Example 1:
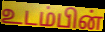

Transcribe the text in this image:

உடம்பின்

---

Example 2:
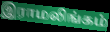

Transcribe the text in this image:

இராமலிங்கம்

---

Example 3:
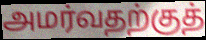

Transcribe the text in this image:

அமர்வதற்குத்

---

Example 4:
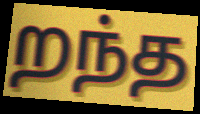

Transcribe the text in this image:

றந்த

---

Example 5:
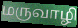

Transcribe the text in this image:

மருவாழி